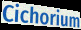
Cichorium